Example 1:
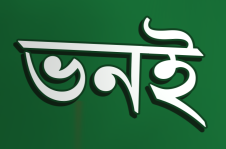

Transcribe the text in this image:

ভনই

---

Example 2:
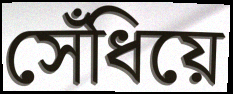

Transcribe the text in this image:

সেঁধিয়ে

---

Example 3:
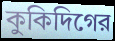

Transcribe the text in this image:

কুকিদিগের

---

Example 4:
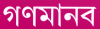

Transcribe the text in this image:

গণমানব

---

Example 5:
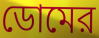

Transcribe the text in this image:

ডোমের